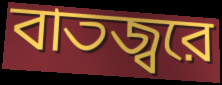
বাতজ্বরে